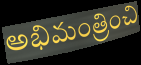
అభిమంత్రించి